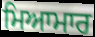
ਮਿਆਮਾਰ